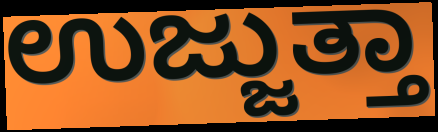
ಉಜ್ಜುತ್ತಾ